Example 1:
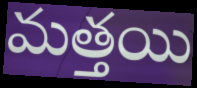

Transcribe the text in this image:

మత్తయి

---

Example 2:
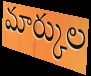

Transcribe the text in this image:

మార్కుల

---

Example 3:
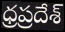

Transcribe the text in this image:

ధ్రప్రదేశ్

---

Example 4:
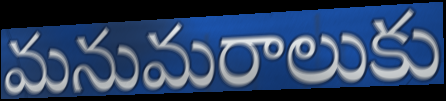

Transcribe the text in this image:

మనుమరాలుకు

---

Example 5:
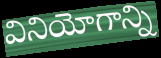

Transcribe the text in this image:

వినియోగాన్ని